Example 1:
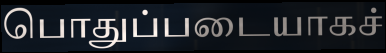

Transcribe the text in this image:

பொதுப்படையாகச்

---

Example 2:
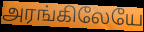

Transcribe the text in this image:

அரங்கிலேயே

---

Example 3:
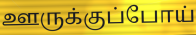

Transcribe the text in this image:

ஊருக்குப்போய்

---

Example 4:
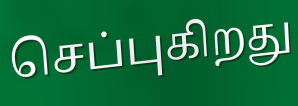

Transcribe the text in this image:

செப்புகிறது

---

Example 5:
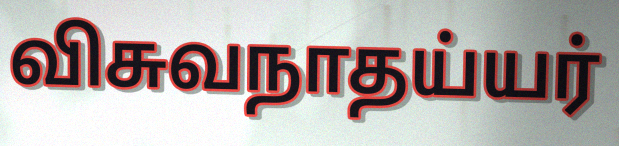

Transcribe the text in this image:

விசுவநாதய்யர்